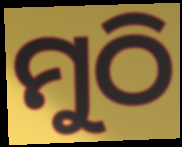
ମୁଠି